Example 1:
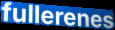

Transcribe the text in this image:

fullerenes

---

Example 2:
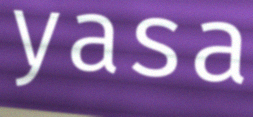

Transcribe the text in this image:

yasa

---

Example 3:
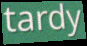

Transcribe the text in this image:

tardy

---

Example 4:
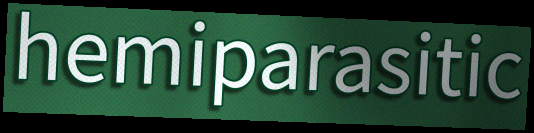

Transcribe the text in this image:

hemiparasitic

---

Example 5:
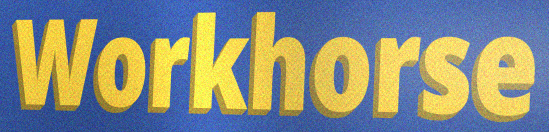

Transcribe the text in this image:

Workhorse